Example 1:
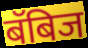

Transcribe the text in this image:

बॅबिज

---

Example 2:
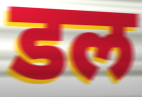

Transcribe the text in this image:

डल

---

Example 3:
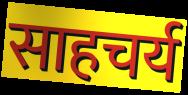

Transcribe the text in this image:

साहचर्य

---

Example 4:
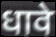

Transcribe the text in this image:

धावे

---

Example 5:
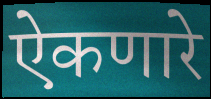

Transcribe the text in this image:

ऐकणारे